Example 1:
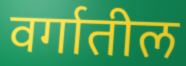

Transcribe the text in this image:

वर्गातील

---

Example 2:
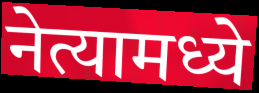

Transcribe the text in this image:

नेत्यामध्ये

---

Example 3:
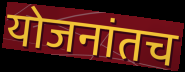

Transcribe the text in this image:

योजनांतच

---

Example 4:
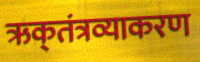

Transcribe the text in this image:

ऋक्‌तंत्रव्याकरण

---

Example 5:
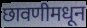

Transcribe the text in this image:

छावणीमधून